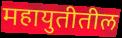
महायुतीतील